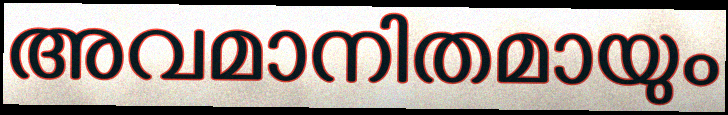
അവമാനിതമായും